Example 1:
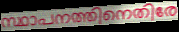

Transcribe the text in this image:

സ്ഥാപനത്തിനെതിരേ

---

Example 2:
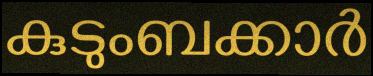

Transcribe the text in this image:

കുടുംബക്കാർ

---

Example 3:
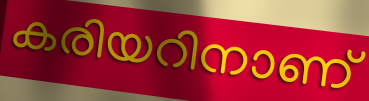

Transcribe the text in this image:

കരിയറിനാണ്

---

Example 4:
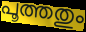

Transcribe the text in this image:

പൂത്തതും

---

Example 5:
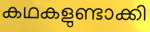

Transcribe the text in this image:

കഥകളുണ്ടാക്കി